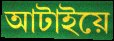
আটাইয়ে